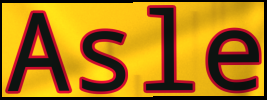
Asle